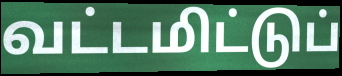
வட்டமிட்டுப்